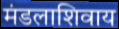
मंडलाशिवाय